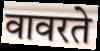
वावरते